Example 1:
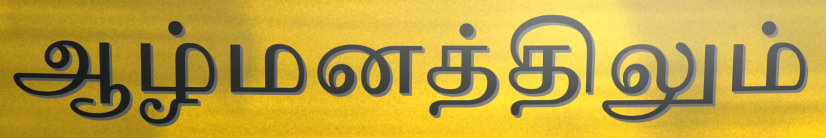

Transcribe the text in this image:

ஆழ்மனத்திலும்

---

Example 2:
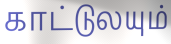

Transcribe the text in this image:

காட்டுலயும்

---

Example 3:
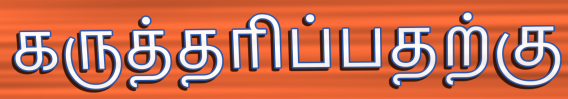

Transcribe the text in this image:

கருத்தரிப்பதற்கு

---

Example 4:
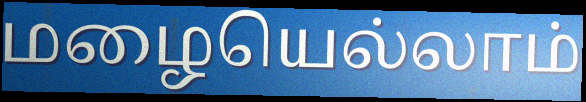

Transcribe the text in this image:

மழையெல்லாம்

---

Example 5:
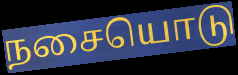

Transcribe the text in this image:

நசையொடு